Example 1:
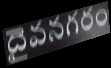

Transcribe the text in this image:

దైవనగరం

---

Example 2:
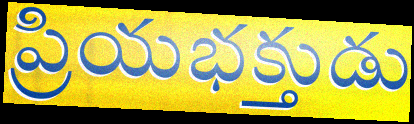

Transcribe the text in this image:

ప్రియభక్తుడు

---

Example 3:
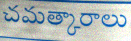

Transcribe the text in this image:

చమత్కారాలు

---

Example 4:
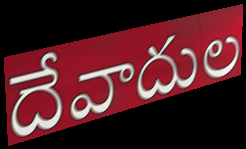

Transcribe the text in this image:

దేవాదుల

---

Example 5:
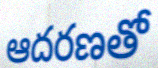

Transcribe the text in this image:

ఆదరణతో